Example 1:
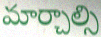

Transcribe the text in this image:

మార్చాల్సి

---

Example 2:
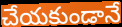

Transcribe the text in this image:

చేయకుండానే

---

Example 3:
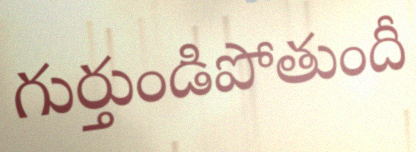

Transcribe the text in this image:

గుర్తుండిపోతుందీ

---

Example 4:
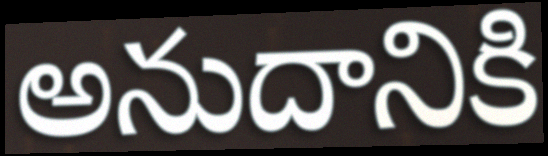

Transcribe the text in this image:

అనుదానికి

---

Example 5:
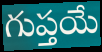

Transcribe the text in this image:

గుప్తయే